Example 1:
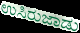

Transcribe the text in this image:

ಉಸಿರುಜಾಡು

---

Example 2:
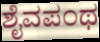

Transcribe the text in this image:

ಶೈವಪಂಥ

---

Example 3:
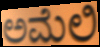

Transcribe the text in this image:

ಅಮೆಲಿ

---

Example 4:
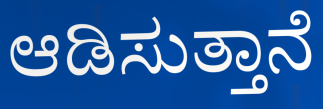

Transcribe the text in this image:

ಆಡಿಸುತ್ತಾನೆ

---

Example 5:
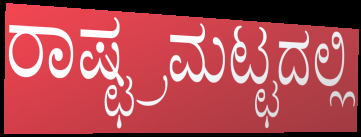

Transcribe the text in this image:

ರಾಷ್ಟ್ರಮಟ್ಟದಲ್ಲಿ